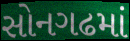
સોનગઢમાં